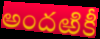
అందఱికీ